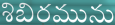
శిబిరమును